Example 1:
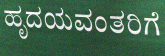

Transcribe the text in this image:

ಹೃದಯವಂತರಿಗೆ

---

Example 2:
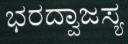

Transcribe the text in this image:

ಭರದ್ವಾಜಸ್ಯ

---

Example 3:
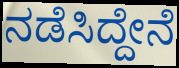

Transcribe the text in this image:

ನಡೆಸಿದ್ದೇನೆ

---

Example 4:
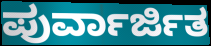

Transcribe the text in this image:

ಪುರ್ವಾರ್ಜಿತ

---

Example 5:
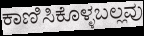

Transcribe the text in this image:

ಕಾಣಿಸಿಕೊಳ್ಳಬಲ್ಲವು